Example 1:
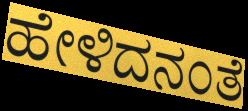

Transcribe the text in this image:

ಹೇಳಿದನಂತೆ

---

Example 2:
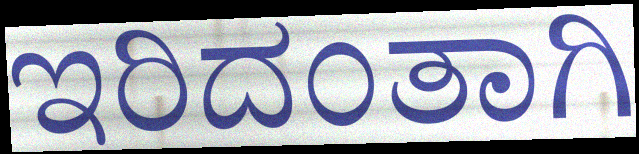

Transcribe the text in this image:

ಇರಿದಂತಾಗಿ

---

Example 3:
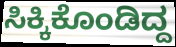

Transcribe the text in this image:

ಸಿಕ್ಕಿಕೊಂಡಿದ್ದ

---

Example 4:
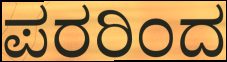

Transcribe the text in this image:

ಪರರಿಂದ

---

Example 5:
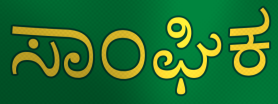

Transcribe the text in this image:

ಸಾಂಘಿಕ